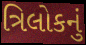
ત્રિલોકનું